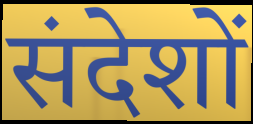
संदेशों